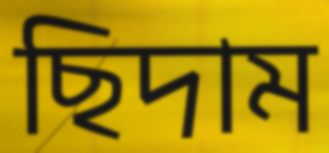
ছিদাম